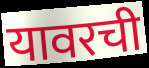
यावरची